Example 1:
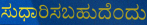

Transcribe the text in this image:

ಸುಧಾರಿಸಬಹುದೆಂದು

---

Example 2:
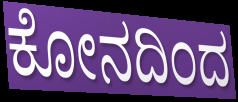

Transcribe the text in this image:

ಕೋನದಿಂದ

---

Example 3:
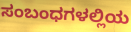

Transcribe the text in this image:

ಸಂಬಂಧಗಳಲ್ಲಿಯ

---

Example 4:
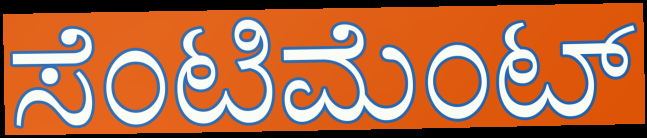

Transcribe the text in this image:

ಸೆಂಟಿಮೆಂಟ್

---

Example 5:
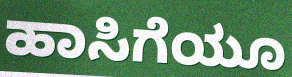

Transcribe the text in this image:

ಹಾಸಿಗೆಯೂ